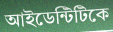
আইডেন্টিটিকে